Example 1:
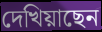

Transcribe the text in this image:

দেখিয়াছেন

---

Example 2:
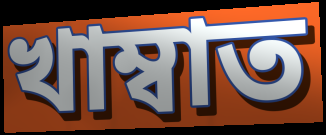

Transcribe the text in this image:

খাম্বাত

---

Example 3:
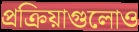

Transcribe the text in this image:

প্রক্রিয়াগুলোও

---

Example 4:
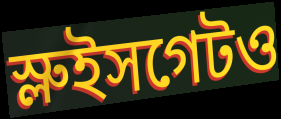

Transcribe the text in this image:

স্লুইসগেটও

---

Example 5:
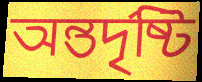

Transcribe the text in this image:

অন্তর্দৃষ্টি